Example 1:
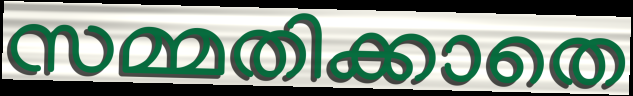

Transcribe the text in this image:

സമ്മതിക്കാതെ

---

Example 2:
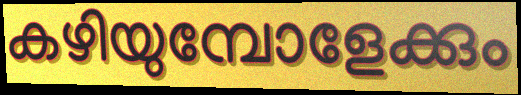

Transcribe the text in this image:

കഴിയുമ്പോളേക്കും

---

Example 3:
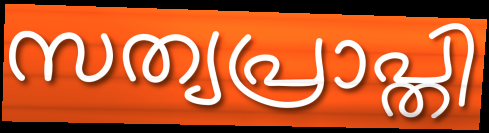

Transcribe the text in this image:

സത്യപ്രാപ്തി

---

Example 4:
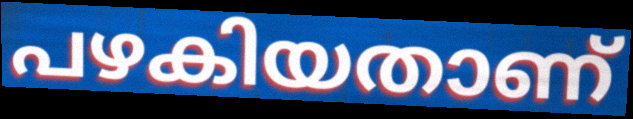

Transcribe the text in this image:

പഴകിയതാണ്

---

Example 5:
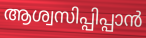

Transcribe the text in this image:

ആശ്വസിപ്പിപ്പാൻ